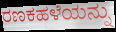
ರಣಕಹಳೆಯನ್ನು